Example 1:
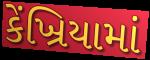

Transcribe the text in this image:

કેંખ્રિયામાં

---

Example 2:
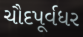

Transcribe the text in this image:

ચૌદપૂર્વધર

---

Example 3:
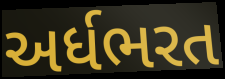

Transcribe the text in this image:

અર્ધભરત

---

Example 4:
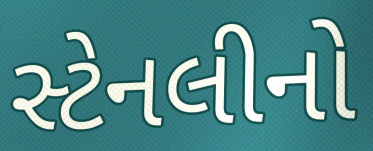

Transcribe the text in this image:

સ્ટેનલીનો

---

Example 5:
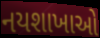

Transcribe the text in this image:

નયશાખાઓ